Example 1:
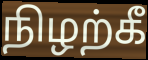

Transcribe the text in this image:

நிழற்கீ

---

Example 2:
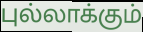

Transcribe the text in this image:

புல்லாக்கும்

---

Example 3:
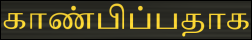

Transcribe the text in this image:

காண்பிப்பதாக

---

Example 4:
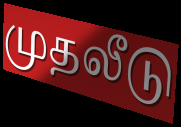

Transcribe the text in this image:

முதலீடு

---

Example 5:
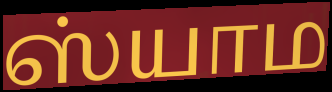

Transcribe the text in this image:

ஸ்யாம